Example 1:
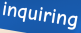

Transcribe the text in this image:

inquiring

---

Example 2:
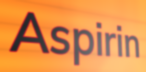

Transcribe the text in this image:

Aspirin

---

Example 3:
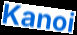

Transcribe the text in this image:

Kanoi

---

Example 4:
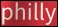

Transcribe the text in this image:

philly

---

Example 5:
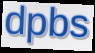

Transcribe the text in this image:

dpbs